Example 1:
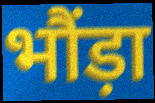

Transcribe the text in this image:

भौंड़ा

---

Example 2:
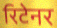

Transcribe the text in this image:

रिटेनर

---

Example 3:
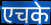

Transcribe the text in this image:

एचके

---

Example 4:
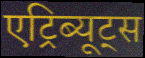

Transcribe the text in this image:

एट्रिब्यूट्स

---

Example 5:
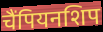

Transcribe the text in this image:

चैंपियनशिप